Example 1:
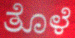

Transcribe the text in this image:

ತೊಳೆ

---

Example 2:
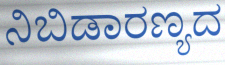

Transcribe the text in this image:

ನಿಬಿಡಾರಣ್ಯದ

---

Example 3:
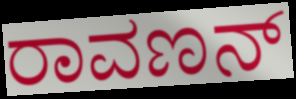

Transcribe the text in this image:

ರಾವಣನ್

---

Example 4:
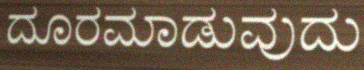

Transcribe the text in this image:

ದೂರಮಾಡುವುದು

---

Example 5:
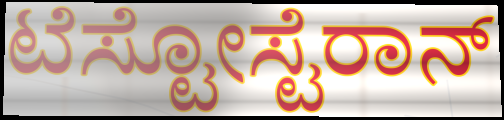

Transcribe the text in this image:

ಟೆಸ್ಟೋಸ್ಟೆರಾನ್